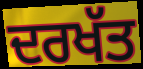
ਦਰਖੱਤ